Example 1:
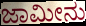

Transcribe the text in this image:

ಜಾಮೀನು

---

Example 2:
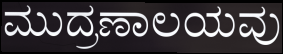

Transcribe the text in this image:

ಮುದ್ರಣಾಲಯವು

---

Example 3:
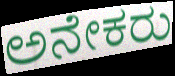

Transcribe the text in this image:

ಅನೇಕರು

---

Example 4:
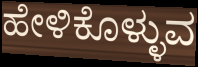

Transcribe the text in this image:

ಹೇಳಿಕೊಳ್ಳುವ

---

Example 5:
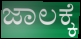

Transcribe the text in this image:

ಜಾಲಕ್ಕೆ